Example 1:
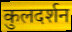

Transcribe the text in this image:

कुलदर्शन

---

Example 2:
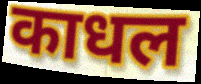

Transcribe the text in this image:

काधल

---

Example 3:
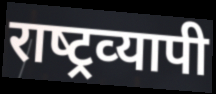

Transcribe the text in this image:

राष्‍ट्रव्‍यापी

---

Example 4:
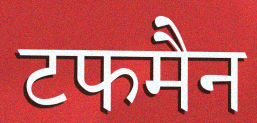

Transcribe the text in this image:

टफमैन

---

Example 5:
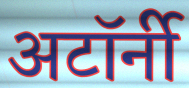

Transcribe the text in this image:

अटॉर्नी